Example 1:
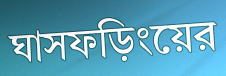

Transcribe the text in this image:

ঘাসফড়িংয়ের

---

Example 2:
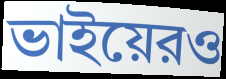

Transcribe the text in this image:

ভাইয়েরও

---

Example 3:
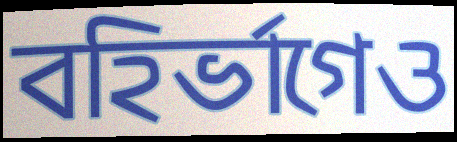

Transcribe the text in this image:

বহির্ভাগেও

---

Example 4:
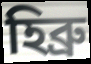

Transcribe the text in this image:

হিব্রু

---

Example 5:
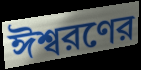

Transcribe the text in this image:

ঈশ্বরণের